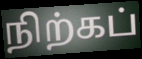
நிற்கப்